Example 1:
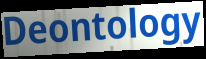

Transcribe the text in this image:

Deontology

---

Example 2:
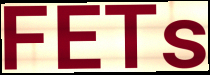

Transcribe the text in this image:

FETs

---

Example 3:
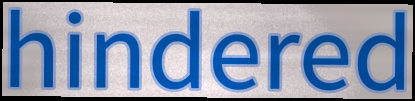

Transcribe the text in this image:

hindered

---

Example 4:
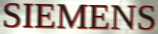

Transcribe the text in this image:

SIEMENS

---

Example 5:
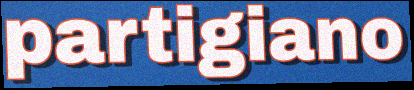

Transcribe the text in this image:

partigiano